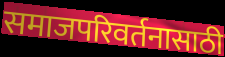
समाजपरिवर्तनासाठी